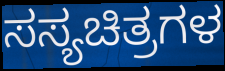
ಸಸ್ಯಚಿತ್ರಗಳ